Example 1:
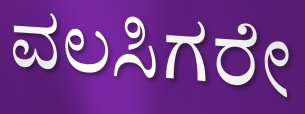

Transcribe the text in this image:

ವಲಸಿಗರೇ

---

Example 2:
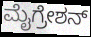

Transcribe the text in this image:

ಮೈಗ್ರೇಶನ್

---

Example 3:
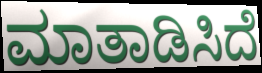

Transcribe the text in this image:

ಮಾತಾಡಿಸಿದೆ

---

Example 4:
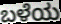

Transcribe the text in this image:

ಬಳೆಯ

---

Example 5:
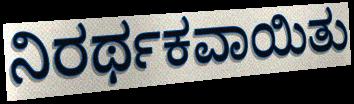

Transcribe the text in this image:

ನಿರರ್ಥಕವಾಯಿತು